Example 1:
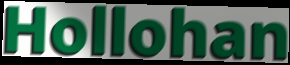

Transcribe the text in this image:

Hollohan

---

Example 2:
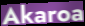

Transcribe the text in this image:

Akaroa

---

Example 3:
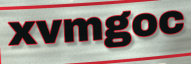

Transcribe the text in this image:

xvmgoc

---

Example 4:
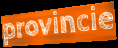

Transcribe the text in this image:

provincie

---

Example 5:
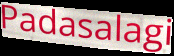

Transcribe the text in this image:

Padasalagi